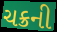
ચક્રની